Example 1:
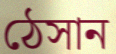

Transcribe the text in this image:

ঠেসান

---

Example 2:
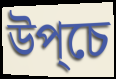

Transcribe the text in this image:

উপ্চে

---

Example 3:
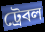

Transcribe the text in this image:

ট্রেবল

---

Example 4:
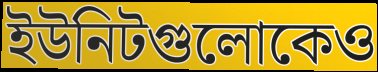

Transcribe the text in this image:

ইউনিটগুলোকেও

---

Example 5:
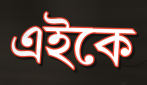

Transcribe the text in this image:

এইকে